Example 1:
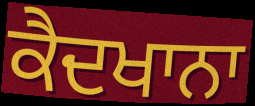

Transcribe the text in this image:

ਕੈਦਖਾਨਾ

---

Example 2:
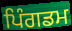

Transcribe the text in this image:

ਪਿੰਗਡਮ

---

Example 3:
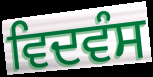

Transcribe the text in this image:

ਵਿਦਵੰਸ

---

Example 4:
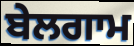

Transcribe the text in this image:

ਬੇਲਗਾਮ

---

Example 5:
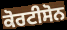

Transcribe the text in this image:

ਕੋਰਟੀਸੋਨ